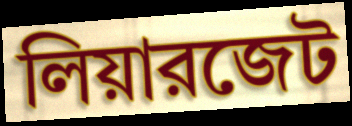
লিয়ারজেট